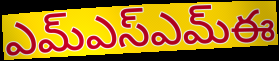
ఎమ్ఎస్ఎమ్ఈ